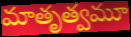
మాతృత్వమూ